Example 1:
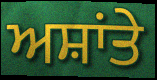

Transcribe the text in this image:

ਅਸ਼ਾਂਤੇ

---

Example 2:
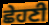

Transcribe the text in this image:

ਛੇਹਣੀ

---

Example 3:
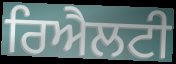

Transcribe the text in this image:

ਰਿਐਲਟੀ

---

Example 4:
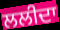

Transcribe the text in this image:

ਲਲੀਦਾ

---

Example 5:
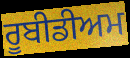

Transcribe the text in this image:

ਰੂਬੀਡੀਅਮ